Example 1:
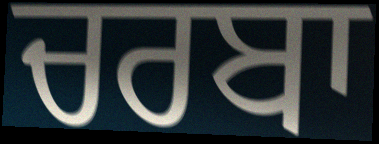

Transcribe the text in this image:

ਚਰਬਾ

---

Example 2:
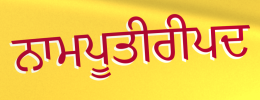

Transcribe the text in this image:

ਨਾਮਪੂਤੀਰੀਪਦ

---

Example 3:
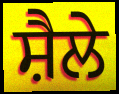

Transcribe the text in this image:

ਸ਼ੈਲੇ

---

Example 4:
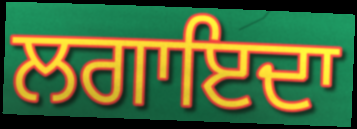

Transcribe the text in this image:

ਲਗਾਇਦਾ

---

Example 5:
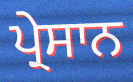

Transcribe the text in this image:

ਪ੍ਰੇਸਾਨ